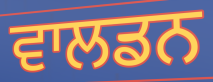
ਵਾਲਡਨ